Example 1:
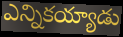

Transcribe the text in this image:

ఎన్నికయ్యాడు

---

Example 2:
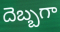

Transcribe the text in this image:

దెబ్బగా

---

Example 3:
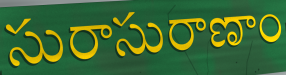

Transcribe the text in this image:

సురాసురాణాం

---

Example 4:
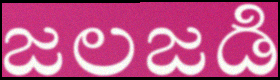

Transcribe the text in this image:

జలజడి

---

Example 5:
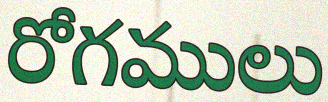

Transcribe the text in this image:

రోగములు